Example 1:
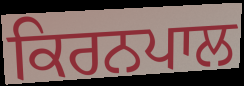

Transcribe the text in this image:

ਕਿਰਨਪਾਲ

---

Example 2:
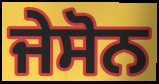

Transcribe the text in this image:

ਜੇਸੋਨ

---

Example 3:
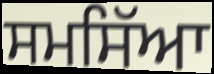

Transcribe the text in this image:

ਸਮਸਿੱਆ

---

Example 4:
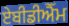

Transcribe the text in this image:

ਏਬੀਡੀਐੱਮ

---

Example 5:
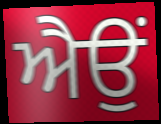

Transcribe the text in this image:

ਐਉਂ